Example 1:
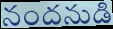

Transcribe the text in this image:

నందనుడి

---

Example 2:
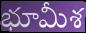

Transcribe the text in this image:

భూమీశ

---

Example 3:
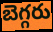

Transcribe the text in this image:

బెగ్గరు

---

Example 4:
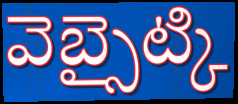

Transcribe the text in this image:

వెబ్సైట్కి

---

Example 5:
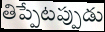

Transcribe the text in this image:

తిప్పేటప్పుడు